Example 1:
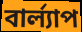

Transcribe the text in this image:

বার্ল্যাপ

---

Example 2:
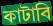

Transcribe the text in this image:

কাটাবি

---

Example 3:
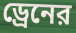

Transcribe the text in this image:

ড্রেনের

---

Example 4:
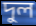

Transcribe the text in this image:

দুল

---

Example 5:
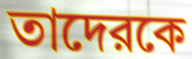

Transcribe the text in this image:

তাদেরকে